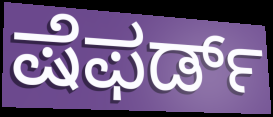
ಷೆಫರ್ಡ್